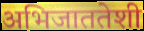
अभिजाततेशी